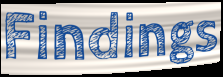
Findings